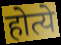
होत्ये